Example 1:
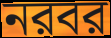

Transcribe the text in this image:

নরবর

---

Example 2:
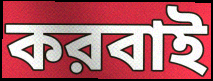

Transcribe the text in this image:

করবাই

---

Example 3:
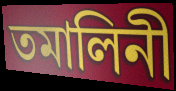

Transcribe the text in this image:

তমালিনী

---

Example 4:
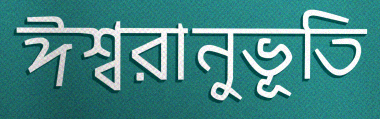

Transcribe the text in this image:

ঈশ্বরানুভূতি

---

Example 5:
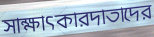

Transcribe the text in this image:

সাক্ষাৎকারদাতাদের